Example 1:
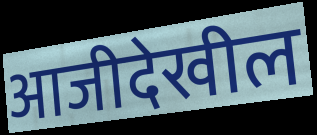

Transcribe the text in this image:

आजीदेखील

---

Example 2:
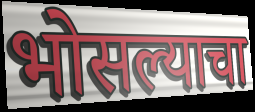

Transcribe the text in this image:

भोसल्याचा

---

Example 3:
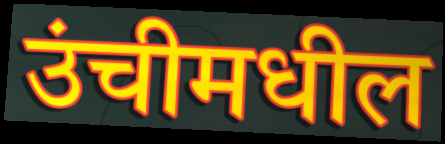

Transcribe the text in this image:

उंचीमधील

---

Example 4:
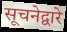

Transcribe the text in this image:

सूचनेद्वारे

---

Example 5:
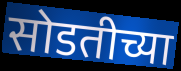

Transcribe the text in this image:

सोडतीच्या